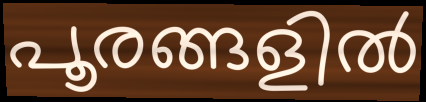
പൂരങ്ങളിൽ